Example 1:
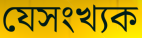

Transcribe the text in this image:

যেসংখ্যক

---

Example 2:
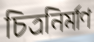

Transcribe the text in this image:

চিত্রনির্মাণ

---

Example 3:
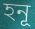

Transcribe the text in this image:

হনূ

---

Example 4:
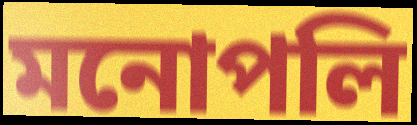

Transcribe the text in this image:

মনোপলি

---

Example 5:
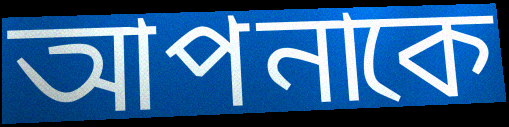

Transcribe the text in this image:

আপনাকে